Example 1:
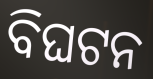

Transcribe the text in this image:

ବିଘଟନ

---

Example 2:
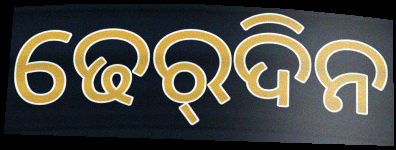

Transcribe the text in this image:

ଢେର୍‌ଦିନ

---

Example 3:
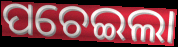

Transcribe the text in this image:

ପଚେଇଲା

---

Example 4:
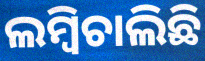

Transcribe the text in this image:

ଲମ୍ବିଚାଲିଛି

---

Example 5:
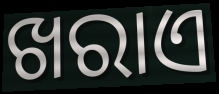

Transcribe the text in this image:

ଖରାଏ